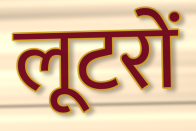
लूटरों